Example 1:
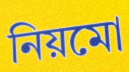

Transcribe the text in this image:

নিয়মো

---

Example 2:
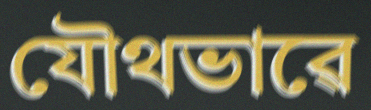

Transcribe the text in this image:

যৌথভাৱে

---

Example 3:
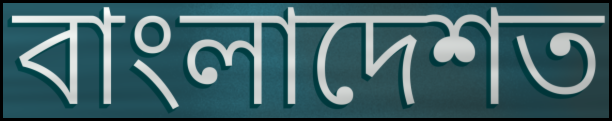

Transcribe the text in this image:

বাংলাদেশত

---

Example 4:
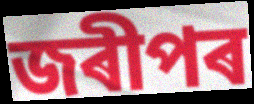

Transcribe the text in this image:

জৰীপৰ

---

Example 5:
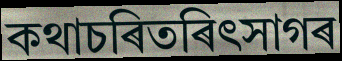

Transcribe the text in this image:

কথাচৰিতৰিৎসাগৰ